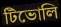
টিভোলি